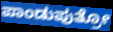
ಪಾಂಡುಪುತ್ರೋ